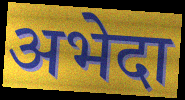
अभेदा